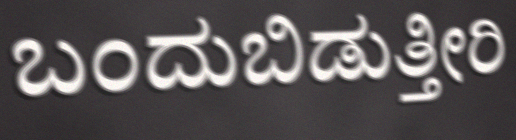
ಬಂದುಬಿಡುತ್ತೀರಿ